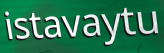
istavaytu